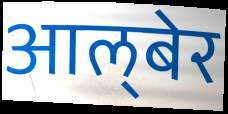
आल्बेर